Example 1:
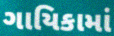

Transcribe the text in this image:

ગાયિકામાં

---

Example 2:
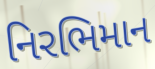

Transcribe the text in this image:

નિરભિમાન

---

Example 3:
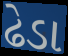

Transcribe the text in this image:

ઢેડા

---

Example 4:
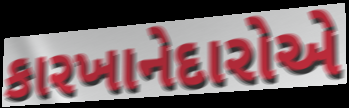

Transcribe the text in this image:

કારખાનેદારોએ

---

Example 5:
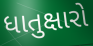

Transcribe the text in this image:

ધાતુક્ષારો